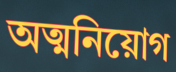
অত্মনিয়োগ